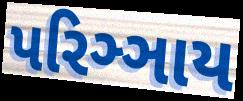
પરિઞ્ઞાય